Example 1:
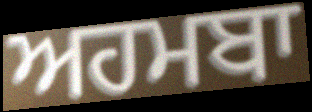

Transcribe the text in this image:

ਅਹਮਬਾ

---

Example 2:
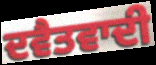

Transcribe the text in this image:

ਦਵੈਤਵਾਦੀ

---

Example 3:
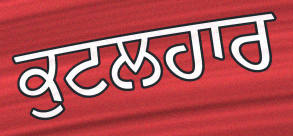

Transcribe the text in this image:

ਕੁਟਲਹਾਰ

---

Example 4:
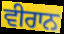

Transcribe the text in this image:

ਵੀਰਾਨ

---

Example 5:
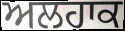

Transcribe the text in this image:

ਅਲਹਾਕ